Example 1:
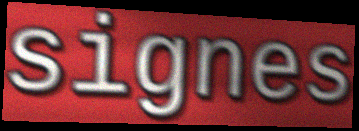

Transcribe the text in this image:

signes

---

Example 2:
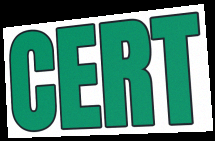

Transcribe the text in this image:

CERT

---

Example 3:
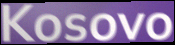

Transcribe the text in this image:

Kosovo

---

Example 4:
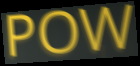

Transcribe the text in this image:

POW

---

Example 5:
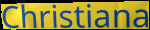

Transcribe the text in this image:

Christiana